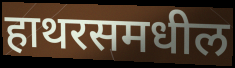
हाथरसमधील